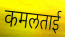
कमलताई